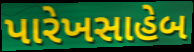
પારેખસાહેબ